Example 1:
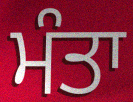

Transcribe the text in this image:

ਮੰਤਾ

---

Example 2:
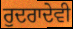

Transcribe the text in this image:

ਰੁਦਰਾਦੇਵੀ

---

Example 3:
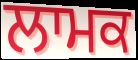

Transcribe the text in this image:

ਲਾਮਕ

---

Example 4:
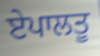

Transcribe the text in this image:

ਏਪਾਲਤੂ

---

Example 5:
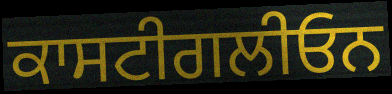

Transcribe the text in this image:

ਕਾਸਟੀਗਲੀਓਨ